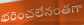
భరించలేనంతగా